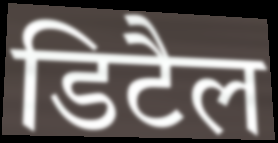
डिटैल